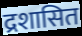
द्रशासित